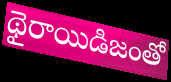
థైరాయిడిజంతో